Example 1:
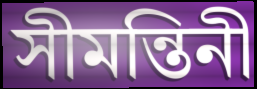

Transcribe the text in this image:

সীমন্তিনী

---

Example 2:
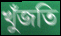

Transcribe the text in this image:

খুঁজতি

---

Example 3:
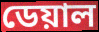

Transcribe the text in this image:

ডেয়াল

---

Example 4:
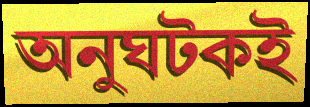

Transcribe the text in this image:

অনুঘটকই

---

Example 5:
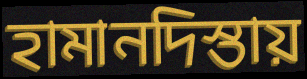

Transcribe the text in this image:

হামানদিস্তায়